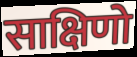
साक्षिणो